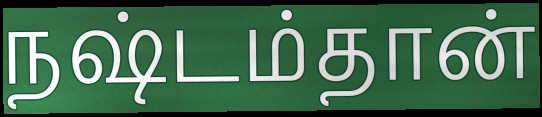
நஷ்டம்தான்